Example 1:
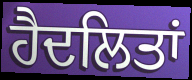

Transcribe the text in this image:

ਹੈਦਲਿਤਾਂ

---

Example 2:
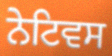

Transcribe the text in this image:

ਨੇਟਿਵਸ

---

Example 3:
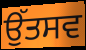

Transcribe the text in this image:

ਉੱਤਸਵ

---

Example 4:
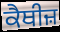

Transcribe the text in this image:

ਕੈਥੀਜ਼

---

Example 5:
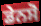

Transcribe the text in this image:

ਡੇਨਸੋ